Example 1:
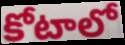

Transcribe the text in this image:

కోటాలో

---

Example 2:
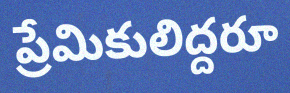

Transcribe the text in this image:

ప్రేమికులిద్దరూ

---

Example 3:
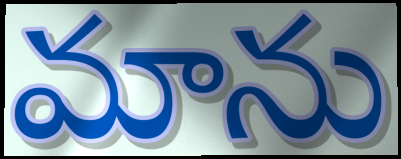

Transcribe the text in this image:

మాను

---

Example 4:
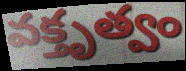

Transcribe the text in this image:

వక్తృత్వం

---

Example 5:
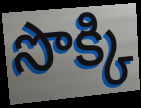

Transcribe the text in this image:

సొక్కి